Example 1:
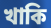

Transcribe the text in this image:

খাকি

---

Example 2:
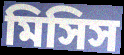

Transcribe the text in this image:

মিসিস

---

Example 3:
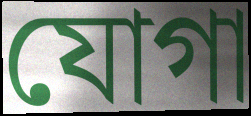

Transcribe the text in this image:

যোগা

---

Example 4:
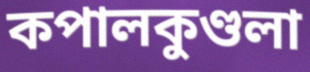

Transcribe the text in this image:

কপালকুণ্ডলা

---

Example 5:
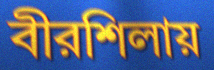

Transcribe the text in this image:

বীরশিলায়